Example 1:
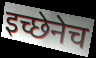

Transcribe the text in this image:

इच्छेनेच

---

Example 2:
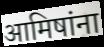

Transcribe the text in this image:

आमिषांना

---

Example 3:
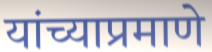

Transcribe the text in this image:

यांच्याप्रमाणे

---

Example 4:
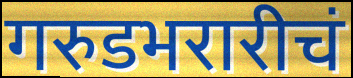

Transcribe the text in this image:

गरुडभरारीचं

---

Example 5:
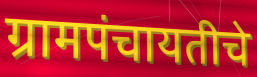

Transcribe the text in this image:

ग्रामपंचायतीचे